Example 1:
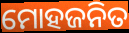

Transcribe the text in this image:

ମୋହଜନିତ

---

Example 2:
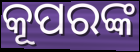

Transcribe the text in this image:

କୂପରଙ୍କ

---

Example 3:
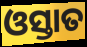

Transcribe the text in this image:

ଓସ୍ତାତ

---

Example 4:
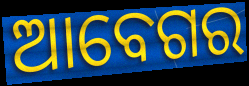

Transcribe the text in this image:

ଆବେଗର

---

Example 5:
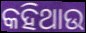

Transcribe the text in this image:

କହିଥାଉ